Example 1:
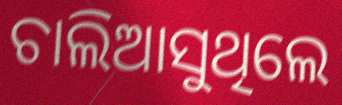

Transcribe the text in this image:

ଚାଲିଆସୁଥିଲେ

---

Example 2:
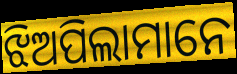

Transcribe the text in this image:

ଝିଅପିଲାମାନେ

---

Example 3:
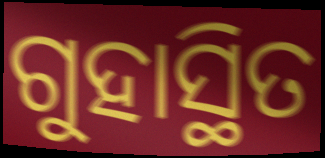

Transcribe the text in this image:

ଗୁହାସ୍ଥିତ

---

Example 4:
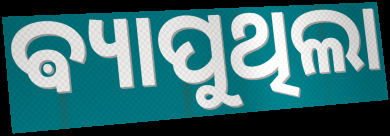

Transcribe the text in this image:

ଵ୍ୟାପୁଥିଲା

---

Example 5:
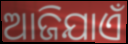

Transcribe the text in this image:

ଆଜିଯାଏଁ